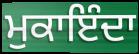
ਮੁਕਾਇੰਦਾ